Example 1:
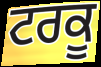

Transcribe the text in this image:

ਟਰਕੂ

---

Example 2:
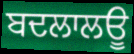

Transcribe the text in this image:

ਬਦਲਾਲਊ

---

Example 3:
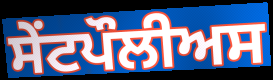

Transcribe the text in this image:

ਸੇਂਟਪੌਲੀਅਸ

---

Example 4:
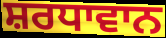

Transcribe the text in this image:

ਸ਼ਰਧਾਵਾਨ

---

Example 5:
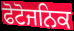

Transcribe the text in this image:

ਫੋਟੋਜਨਿਕ